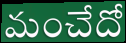
మంచేదో